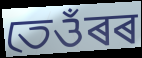
তেওঁৰৰ